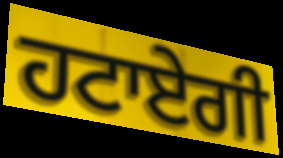
ਹਟਾਏਗੀ